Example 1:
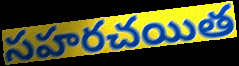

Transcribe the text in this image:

సహరచయిత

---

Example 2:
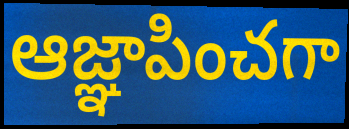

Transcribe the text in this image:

ఆజ్ఞాపించగా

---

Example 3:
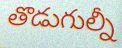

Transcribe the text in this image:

తొడుగుల్నీ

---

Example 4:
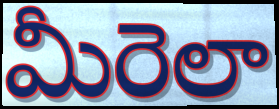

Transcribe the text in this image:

మీరెలా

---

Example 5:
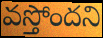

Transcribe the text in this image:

వస్తోందని